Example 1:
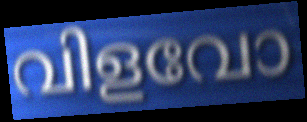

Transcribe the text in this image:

വിളവോ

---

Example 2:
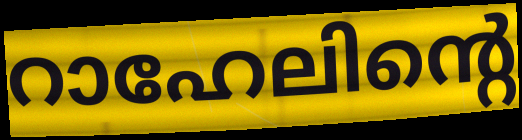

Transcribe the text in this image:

റാഹേലിന്റെ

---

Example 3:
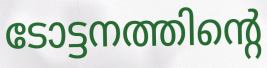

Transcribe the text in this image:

ടോട്ടനത്തിന്റെ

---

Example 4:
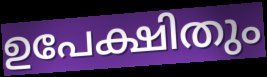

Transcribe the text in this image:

ഉപേക്ഷിതും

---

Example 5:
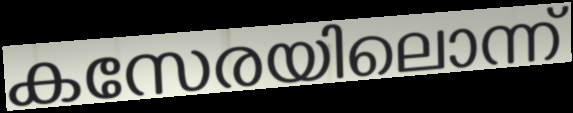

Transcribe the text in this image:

കസേരയിലൊന്ന്